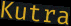
Kutra